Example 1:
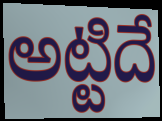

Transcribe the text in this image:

అట్టిదే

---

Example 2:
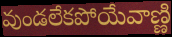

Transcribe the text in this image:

వుండలేకపోయేవాణ్ణి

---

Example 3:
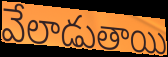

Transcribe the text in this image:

వేలాడుతాయి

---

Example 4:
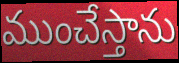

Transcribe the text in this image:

ముంచేస్తాను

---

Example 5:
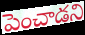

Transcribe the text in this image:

పెంచాడని